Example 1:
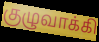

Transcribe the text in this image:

குழுவாக்கி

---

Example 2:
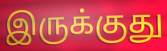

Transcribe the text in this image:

இருக்குது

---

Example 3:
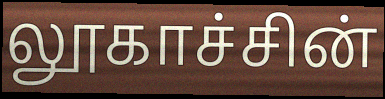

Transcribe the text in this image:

லூகாச்சின்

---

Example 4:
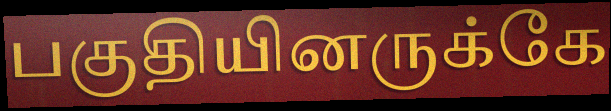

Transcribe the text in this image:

பகுதியினருக்கே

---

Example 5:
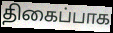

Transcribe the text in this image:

திகைப்பாக